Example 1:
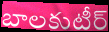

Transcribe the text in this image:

బాలకుటీర్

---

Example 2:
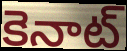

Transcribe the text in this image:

కెనాట్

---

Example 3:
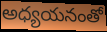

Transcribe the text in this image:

అధ్యయనంతో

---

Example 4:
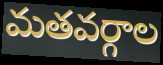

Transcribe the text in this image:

మతవర్గాల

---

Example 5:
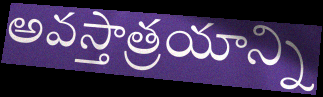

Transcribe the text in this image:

అవస్తాత్రయాన్ని